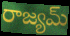
రాజ్యమ్